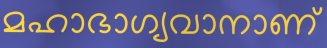
മഹാഭാഗ്യവാനാണ്